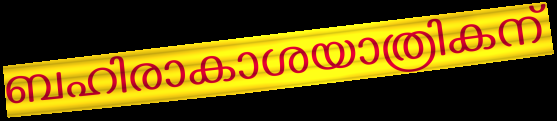
ബഹിരാകാശയാത്രികന്